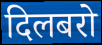
दिलबरो